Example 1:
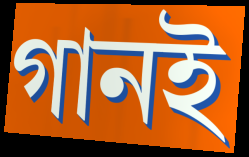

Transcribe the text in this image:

গানই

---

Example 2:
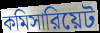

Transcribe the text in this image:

কমিসারিয়েট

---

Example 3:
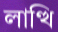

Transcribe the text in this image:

লাত্থি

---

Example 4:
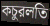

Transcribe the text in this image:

কচুরলতি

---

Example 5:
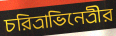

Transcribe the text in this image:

চরিত্রাভিনেত্রীর